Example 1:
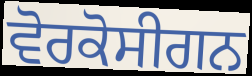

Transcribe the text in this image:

ਵੋਰਕੋਸੀਗਨ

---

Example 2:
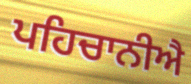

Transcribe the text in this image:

ਪਹਿਚਾਨੀਐ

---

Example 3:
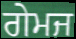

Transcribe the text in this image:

ਗੇਮਜ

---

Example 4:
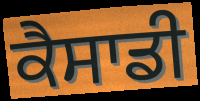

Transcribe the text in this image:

ਕੈਸਾਡੀ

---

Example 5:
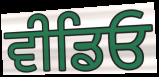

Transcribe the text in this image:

ਵੀਡਿਓ